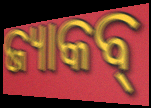
ଜ୍ୟାକବ୍